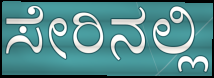
ಸೇರಿನಲ್ಲಿ